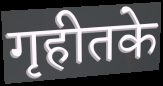
गृहीतके